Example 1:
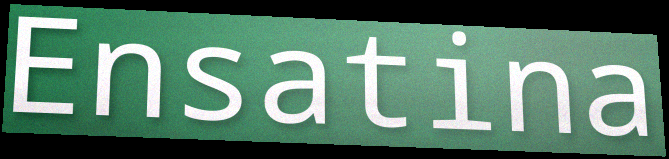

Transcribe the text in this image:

Ensatina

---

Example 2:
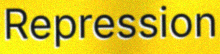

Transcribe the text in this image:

Repression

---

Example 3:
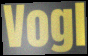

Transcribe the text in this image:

Vogl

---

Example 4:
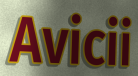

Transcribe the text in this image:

Avicii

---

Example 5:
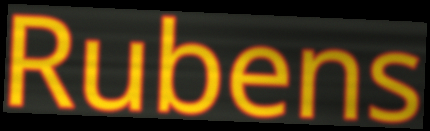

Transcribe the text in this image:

Rubens